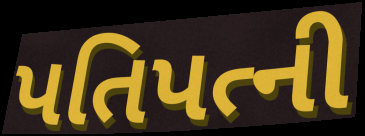
પતિપત્ની